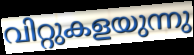
വിറ്റുകളയുന്നു